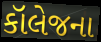
કૉલેજના